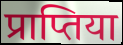
प्राप्तिया